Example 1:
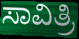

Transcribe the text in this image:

ಸಾವಿತ್ರಿ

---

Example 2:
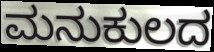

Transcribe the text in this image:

ಮನುಕುಲದ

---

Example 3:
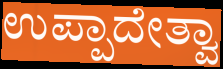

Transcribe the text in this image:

ಉಪ್ಪಾದೇತ್ವಾ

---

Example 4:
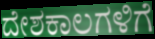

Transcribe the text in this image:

ದೇಶಕಾಲಗಳಿಗೆ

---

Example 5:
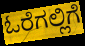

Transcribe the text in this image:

ಓರೆಗಲ್ಲಿಗೆ